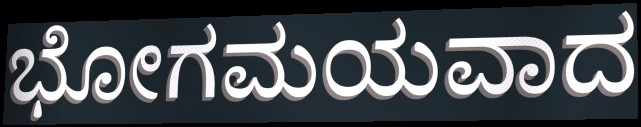
ಭೋಗಮಯವಾದ